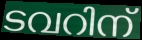
ടവറിന്